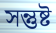
সন্তুষ্ট